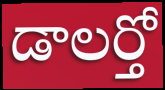
డాలర్తో